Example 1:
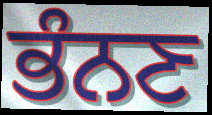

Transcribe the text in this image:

ਭੰਨਣ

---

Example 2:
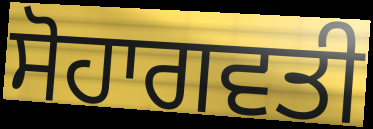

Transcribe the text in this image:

ਸੋਹਾਗਵਤੀ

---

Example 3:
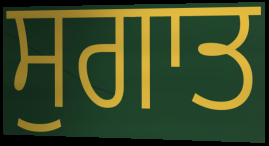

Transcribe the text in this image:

ਸੁਗਾਤ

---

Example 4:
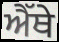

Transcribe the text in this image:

ਐੱਥੇ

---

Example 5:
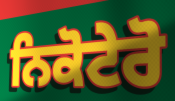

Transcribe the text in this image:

ਨਿਕੋਟੇਰੋ